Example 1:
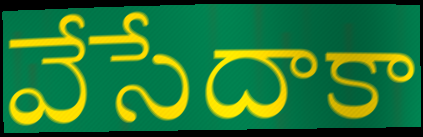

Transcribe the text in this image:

వేసేదాకా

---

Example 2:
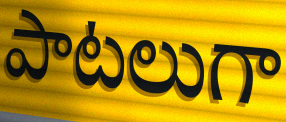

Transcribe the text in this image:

పాటలుగా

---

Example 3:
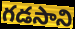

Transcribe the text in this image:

గడసాని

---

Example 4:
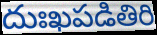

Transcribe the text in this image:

దుఃఖపడితిరి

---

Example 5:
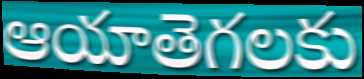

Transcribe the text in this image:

ఆయాతెగలకు